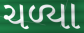
ચળ્યા